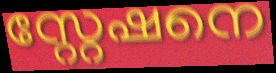
സ്റ്റേഷനെ